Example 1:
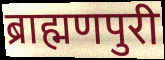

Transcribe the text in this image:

ब्राह्मणपुरी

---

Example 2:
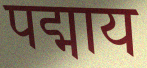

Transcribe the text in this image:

पद्माय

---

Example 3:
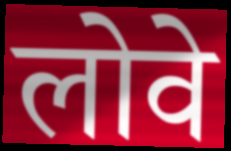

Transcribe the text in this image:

लोवे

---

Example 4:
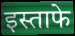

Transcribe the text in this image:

इस्ताफे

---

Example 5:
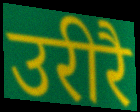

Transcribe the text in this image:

उरीरै